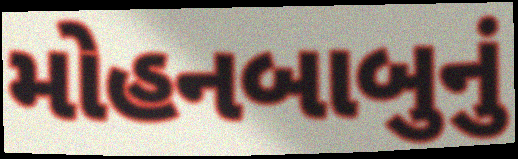
મોહનબાબુનું